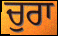
ਚੁਰਾ